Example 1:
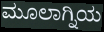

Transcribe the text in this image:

ಮೂಲಾಗ್ನಿಯ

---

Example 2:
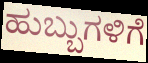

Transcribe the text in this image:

ಹುಬ್ಬುಗಳಿಗೆ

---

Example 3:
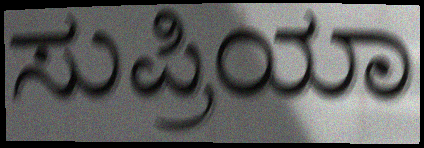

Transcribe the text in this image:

ಸುಪ್ರಿಯಾ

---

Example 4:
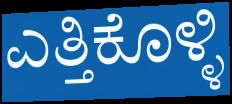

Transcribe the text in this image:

ಎತ್ತಿಕೊಳ್ಳಿ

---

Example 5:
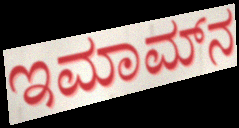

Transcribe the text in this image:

ಇಮಾಮ್‍ನ